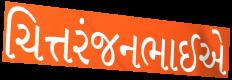
ચિત્તરંજનભાઈએ